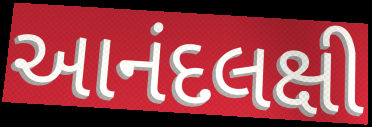
આનંદલક્ષી